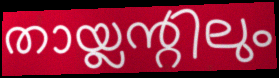
തായ്ലന്റിലും